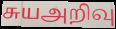
சுயஅறிவு